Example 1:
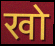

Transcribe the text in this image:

खो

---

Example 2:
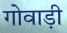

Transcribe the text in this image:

गोवाड़ी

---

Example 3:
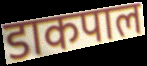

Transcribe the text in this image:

डाकपाल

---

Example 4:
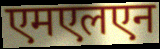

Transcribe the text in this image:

एमएलएन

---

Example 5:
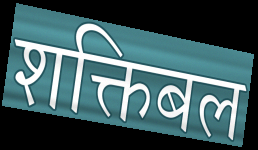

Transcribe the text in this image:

शक्तिबल